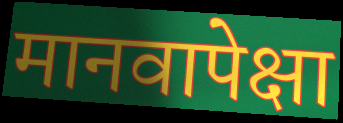
मानवापेक्षा